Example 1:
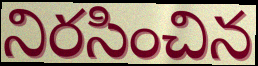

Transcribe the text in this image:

నిరసించిన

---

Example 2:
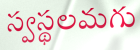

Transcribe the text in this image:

స్వస్థలమగు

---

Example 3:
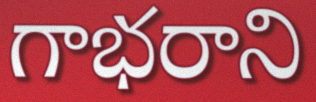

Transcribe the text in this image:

గాభరాని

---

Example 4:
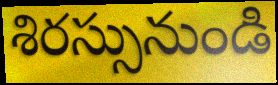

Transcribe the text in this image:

శిరస్సునుండి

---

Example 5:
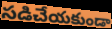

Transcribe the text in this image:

సడిచేయకుండా